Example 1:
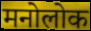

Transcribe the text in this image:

मनोलोक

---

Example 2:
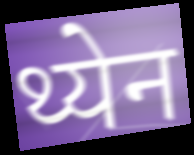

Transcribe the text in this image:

थ्येन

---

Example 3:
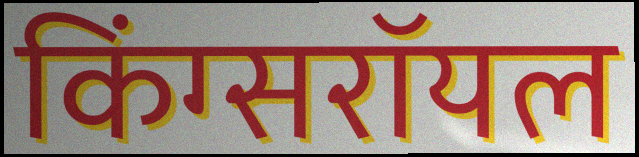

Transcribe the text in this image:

किंग्सरॉयल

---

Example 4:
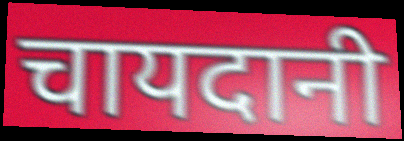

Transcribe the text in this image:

चायदानी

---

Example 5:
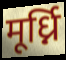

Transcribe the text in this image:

मूर्ध्नि